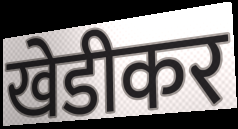
खेडीकर